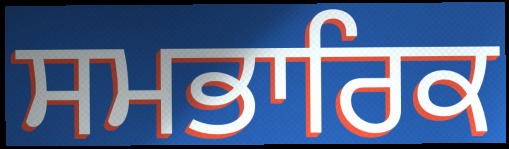
ਸਮਭਾਰਿਕ